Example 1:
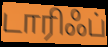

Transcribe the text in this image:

டாரிஃப்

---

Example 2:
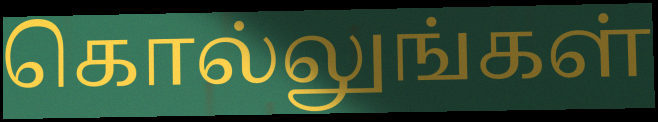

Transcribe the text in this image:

கொல்லுங்கள்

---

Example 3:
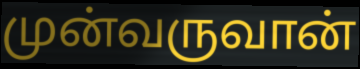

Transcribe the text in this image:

முன்வருவான்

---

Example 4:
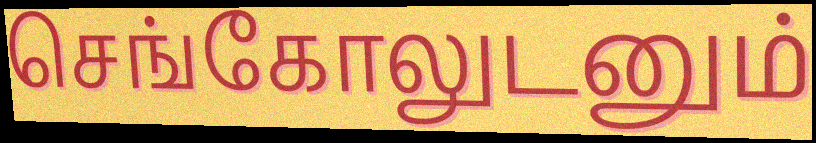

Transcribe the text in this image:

செங்கோலுடனும்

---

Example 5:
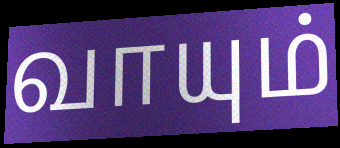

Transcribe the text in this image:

வாயும்